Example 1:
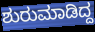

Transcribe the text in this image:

ಶುರುಮಾಡಿದ್ದ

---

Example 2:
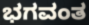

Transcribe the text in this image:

ಭಗವಂತ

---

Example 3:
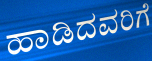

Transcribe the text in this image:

ಹಾಡಿದವರಿಗೆ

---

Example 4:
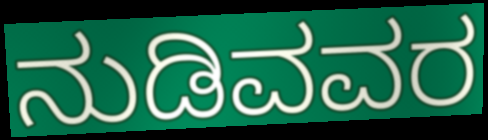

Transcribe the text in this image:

ನುಡಿವವರ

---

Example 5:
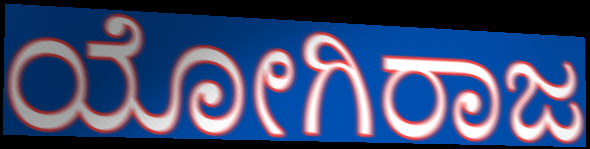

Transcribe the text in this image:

ಯೋಗಿರಾಜ